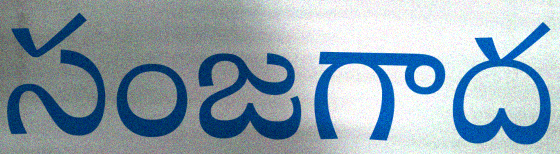
సంజగాద